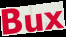
Bux